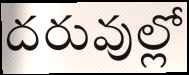
దరువుల్లో